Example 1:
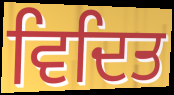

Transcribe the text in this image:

ਵਿਦਿਤ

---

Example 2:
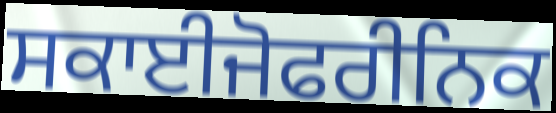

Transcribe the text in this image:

ਸਕਾਈਜੋਫਰੀਨਿਕ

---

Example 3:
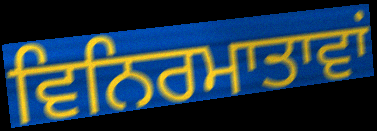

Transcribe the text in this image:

ਵਿਨਿਰਮਾਤਾਵਾਂ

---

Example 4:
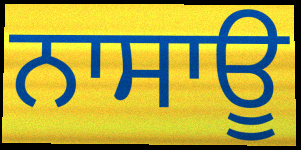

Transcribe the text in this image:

ਨਾਸਾਊ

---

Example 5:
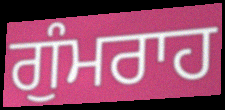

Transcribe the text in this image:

ਗੁੰਮਰਾਹ